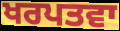
ਖਰਪਤਵਾ